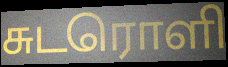
சுடரொளி